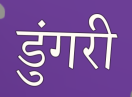
डुंगरी